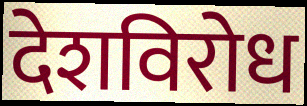
देशविरोध